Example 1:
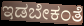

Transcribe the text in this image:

ಇಡಬೇಕಂತೆ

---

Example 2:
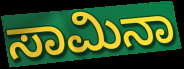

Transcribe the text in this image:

ಸಾಮಿನಾ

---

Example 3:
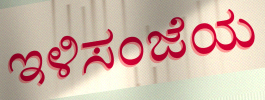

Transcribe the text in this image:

ಇಳಿಸಂಜೆಯ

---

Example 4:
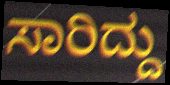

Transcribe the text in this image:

ಸಾರಿದ್ದು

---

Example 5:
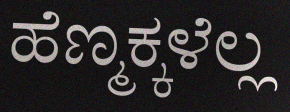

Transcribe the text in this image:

ಹೆಣ್ಮಕ್ಕಳೆಲ್ಲ